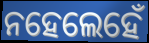
ନହେଲେହେଁ